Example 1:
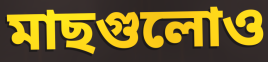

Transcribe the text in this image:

মাছগুলোও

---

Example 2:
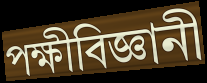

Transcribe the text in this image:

পক্ষীবিজ্ঞানী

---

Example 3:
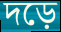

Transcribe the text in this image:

দড়ে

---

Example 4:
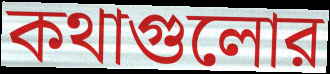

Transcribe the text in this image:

কথাগুলোর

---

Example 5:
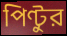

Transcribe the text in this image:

পিণ্টুর